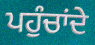
ਪਹੁੰਚਾਂਦੇ